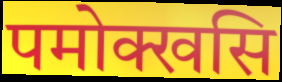
पमोक्खसि